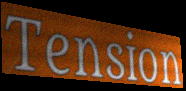
Tension